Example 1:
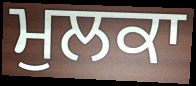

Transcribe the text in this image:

ਮੁਲਕਾ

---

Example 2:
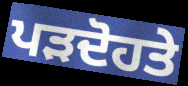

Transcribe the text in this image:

ਪੜਦੋਹਤੇ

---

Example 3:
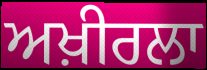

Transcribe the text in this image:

ਅਖ਼ੀਰਲਾ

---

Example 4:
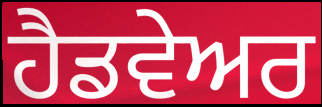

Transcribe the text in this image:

ਹੈਡਵੇਅਰ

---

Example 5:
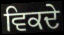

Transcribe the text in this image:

ਵਿਕਦੇ